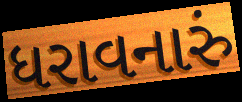
ધરાવનારું